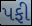
પફી